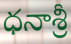
ధనాశ్రీ